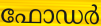
ഫോഡർ